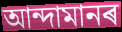
আন্দামানৰ